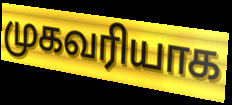
முகவரியாக